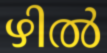
ഴിൽ